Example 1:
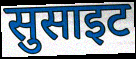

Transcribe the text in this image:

सुसाइट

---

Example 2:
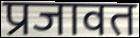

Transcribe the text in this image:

प्रजावत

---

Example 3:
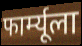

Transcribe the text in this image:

फार्म्यूला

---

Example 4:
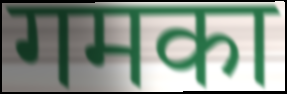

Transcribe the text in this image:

गमका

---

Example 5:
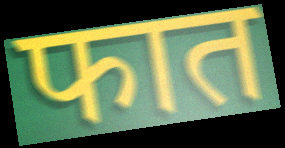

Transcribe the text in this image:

फात